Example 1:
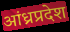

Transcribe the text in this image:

आंध्रप्रदेश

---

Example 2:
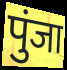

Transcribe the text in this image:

पुंजा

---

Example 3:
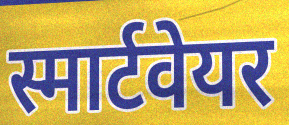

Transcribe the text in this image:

स्मार्टवेयर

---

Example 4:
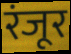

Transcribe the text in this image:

रंजूर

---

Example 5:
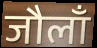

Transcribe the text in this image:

जौलाँ